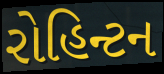
રોહિન્ટન